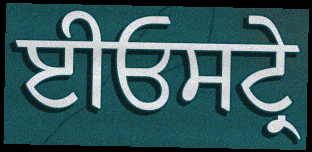
ਈਓਸਟ੍ਰੇ